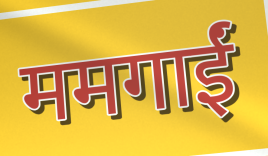
ममगाईं